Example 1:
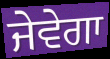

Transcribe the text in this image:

ਜੇਵੇਗਾ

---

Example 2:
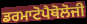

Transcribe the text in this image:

ਡਰਮਾਟੋਪੈਥੋਲੋਜੀ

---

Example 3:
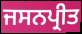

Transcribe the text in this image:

ਜਸਨਪ੍ਰੀਤ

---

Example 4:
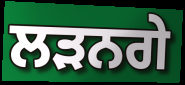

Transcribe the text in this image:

ਲੜਨਗੇ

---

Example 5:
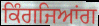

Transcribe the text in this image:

ਕਿੰਗਜਿਆਂਗ